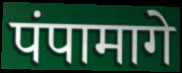
पंपामागे